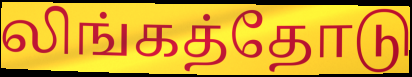
லிங்கத்தோடு